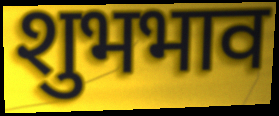
शुभभाव